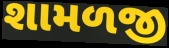
શામળજી